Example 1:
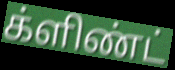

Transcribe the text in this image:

க்ளிண்ட்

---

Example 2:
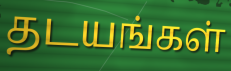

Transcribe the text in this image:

தடயங்கள்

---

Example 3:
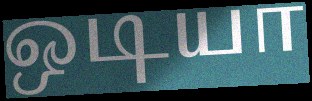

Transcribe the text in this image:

ஒடியா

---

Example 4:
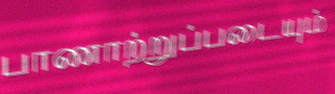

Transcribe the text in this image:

பாணாற்றுப்படையும்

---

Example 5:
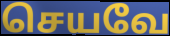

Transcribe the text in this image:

செயவே